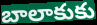
బాలాకుకు